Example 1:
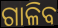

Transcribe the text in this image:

ଗାଳିବ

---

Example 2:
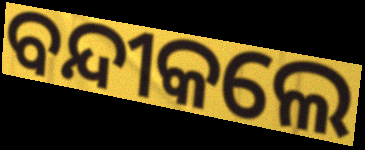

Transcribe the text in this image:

ବନ୍ଦୀକଲେ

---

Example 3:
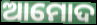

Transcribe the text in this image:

ଆମୋଦ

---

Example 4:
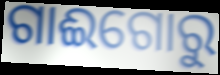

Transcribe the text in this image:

ଗାଈଗୋରୁ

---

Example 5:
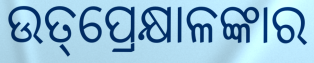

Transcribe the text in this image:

ଉତ୍‌ପ୍ରେକ୍ଷାଳଙ୍କାର